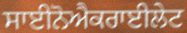
ਸਾਈਨੋਐਕਰਾਈਲੇਟ